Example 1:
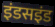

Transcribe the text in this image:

इंडसइंड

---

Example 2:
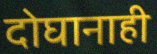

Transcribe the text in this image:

दोघानाही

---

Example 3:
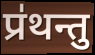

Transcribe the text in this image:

प्र॑थन्तु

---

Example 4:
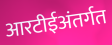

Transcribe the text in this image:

आरटीईअंतर्गत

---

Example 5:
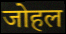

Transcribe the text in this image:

जोहल